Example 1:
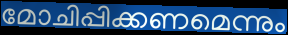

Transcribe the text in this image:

മോചിപ്പിക്കണമെന്നും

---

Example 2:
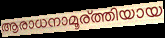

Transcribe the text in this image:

ആരാധനാമൂര്ത്തിയായ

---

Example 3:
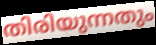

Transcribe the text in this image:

തിരിയുന്നതും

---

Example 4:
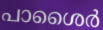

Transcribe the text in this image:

പാശൈർ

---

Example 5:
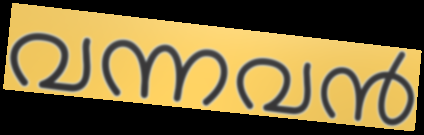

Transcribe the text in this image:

വന്നവൻ